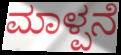
ಮಾಳ್ಪನೆ